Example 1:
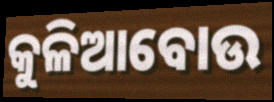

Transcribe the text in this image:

କୁଳିଆବୋଉ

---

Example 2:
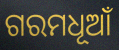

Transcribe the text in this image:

ଗରମଧୂଆଁ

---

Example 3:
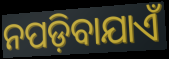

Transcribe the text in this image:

ନପଡ଼ିବାଯାଏଁ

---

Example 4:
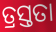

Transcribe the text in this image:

ତ୍ରସ୍ତତା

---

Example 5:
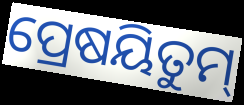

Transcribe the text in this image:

ପ୍ରେଷୟିତୁମ୍